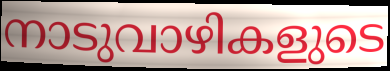
നാടുവാഴികളുടെ